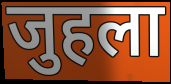
जुहला